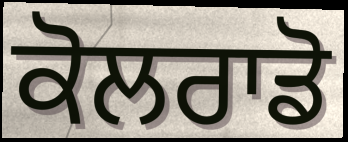
ਕੋਲਰਾਡੋ